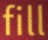
fill